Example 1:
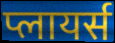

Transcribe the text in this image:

प्लायर्स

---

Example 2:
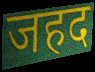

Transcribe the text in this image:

जहद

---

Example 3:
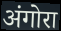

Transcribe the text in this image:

अंगोरा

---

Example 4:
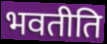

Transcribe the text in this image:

भवतीति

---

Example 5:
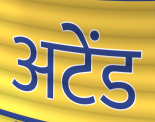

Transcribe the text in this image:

अटेंड